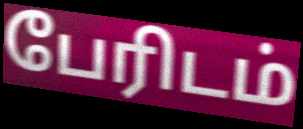
பேரிடம்